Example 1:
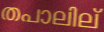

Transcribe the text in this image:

തപാലില്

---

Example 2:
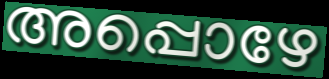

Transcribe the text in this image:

അപ്പൊഴേ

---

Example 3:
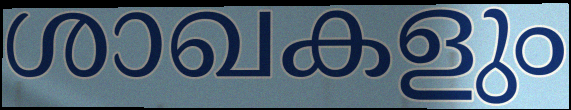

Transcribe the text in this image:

ശാഖകളും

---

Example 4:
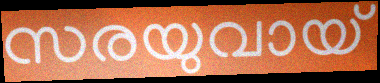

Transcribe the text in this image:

സരയുവായ്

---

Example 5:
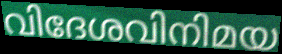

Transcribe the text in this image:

വിദേശവിനിമയ